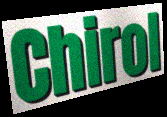
Chirol